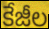
కేజీల